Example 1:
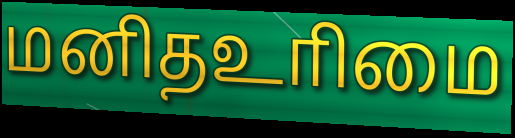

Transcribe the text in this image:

மனிதஉரிமை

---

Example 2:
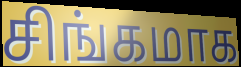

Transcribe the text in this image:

சிங்கமாக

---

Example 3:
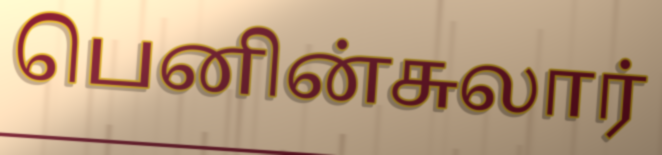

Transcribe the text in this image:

பெனின்சுலார்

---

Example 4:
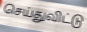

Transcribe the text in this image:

செய்துவிட்டு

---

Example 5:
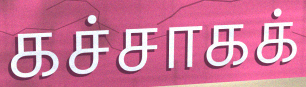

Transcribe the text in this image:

கச்சாகக்